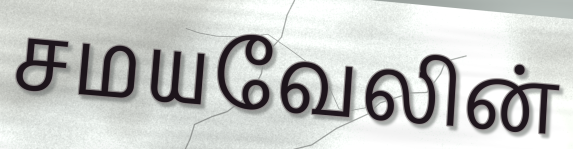
சமயவேலின்